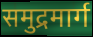
समुद्रमार्ग